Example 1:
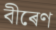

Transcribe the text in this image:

বীৰেণ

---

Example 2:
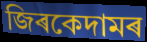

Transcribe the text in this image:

জিৰকেদামৰ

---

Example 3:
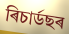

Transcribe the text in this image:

ৰিচাৰ্ডছৰ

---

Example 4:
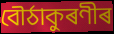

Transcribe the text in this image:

বৌঠাকুৰণীৰ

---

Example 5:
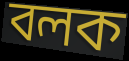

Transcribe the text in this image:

বলক